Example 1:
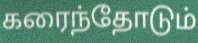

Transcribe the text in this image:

கரைந்தோடும்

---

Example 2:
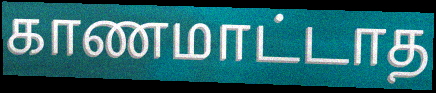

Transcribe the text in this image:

காணமாட்டாத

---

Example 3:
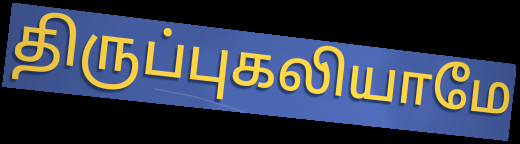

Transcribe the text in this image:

திருப்புகலியாமே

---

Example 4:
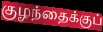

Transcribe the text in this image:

குழந்தைக்குப்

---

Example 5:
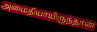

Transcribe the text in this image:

அமைதியாயிருந்தான்